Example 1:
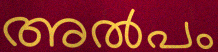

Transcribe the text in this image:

അൽപം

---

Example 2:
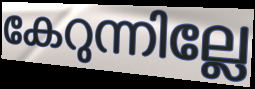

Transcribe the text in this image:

കേറുന്നില്ലേ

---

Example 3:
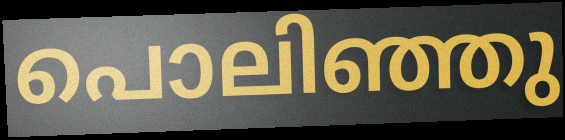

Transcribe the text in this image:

പൊലിഞ്ഞു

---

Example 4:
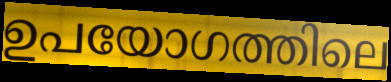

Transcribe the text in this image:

ഉപയോഗത്തിലെ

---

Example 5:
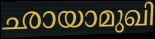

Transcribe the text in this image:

ഛായാമുഖി